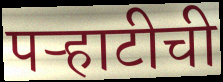
पऱ्हाटीची